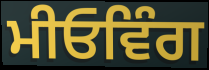
ਮੀਓਵਿੰਗ